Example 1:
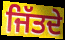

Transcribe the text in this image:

ਜਿੱਤਦੇ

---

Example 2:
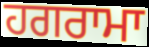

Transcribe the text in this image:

ਹਗਰਾਮਾ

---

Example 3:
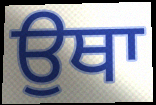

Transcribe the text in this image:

ਉਥਾ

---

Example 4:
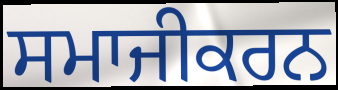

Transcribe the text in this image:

ਸਮਾਜੀਕਰਨ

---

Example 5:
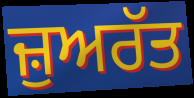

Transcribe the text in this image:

ਜ਼ੁਅਰੱਤ